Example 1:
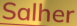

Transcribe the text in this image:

Salher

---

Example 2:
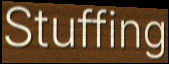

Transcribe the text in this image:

Stuffing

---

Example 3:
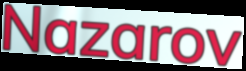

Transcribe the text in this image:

Nazarov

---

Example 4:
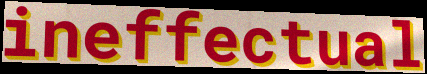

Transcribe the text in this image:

ineffectual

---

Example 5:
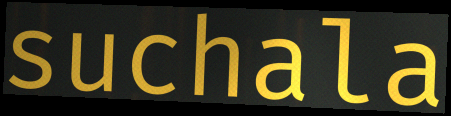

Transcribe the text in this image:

suchala